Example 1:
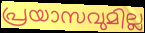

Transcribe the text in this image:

പ്രയാസവുമില്ല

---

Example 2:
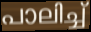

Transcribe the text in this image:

പാലിച്ച്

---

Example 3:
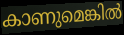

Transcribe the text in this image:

കാണുമെങ്കിൽ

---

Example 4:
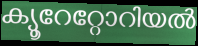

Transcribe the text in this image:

ക്യൂറേറ്റോറിയൽ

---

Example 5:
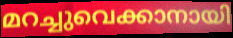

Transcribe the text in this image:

മറച്ചുവെക്കാനായി